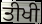
ਤੀਖੀ